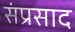
संप्रसाद